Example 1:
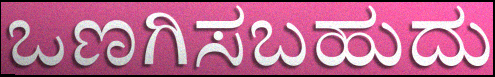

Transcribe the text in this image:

ಒಣಗಿಸಬಹುದು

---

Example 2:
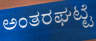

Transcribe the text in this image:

ಅಂತರಘಟ್ಟೆ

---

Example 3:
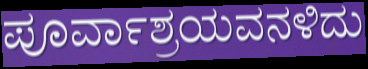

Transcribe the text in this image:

ಪೂರ್ವಾಶ್ರಯವನಳಿದು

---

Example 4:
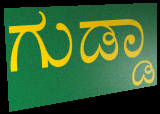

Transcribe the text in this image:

ಗುಡ್ಡಾ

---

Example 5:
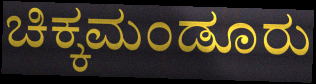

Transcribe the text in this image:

ಚಿಕ್ಕಮಂಡೂರು